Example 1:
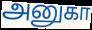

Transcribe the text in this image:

அனுகா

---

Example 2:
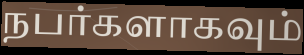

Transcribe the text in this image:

நபர்களாகவும்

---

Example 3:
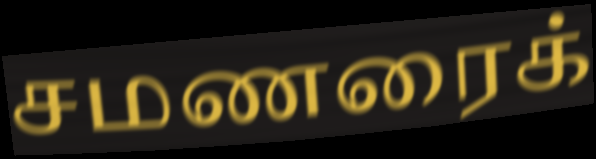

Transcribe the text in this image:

சமணரைக்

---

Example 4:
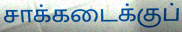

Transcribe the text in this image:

சாக்கடைக்குப்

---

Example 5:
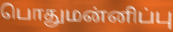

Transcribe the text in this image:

பொதுமன்னிப்பு